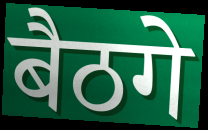
बैठगे